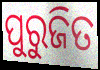
ପୁରୁଜିତ